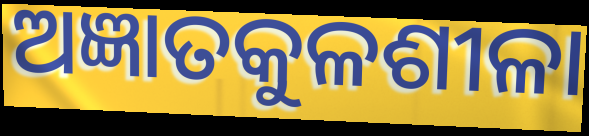
ଅଜ୍ଞାତକୁଳଶୀଳା